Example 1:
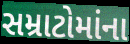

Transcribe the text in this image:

સમ્રાટોમાંના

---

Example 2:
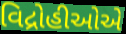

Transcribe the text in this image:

વિદ્રોહીઓએ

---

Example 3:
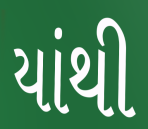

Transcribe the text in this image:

યાંથી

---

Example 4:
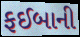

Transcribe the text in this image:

ફઈબાની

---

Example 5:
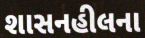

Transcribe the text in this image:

શાસનહીલના